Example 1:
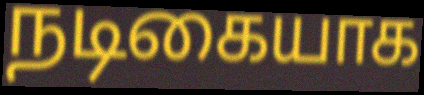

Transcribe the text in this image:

நடிகையாக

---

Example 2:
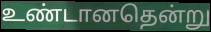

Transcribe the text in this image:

உண்டானதென்று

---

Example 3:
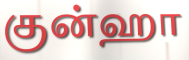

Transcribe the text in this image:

குன்ஹா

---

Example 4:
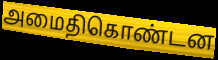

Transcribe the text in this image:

அமைதிகொண்டன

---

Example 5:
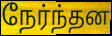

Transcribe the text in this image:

நேர்ந்தன